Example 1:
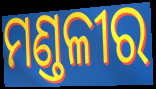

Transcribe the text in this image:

ମଣ୍ଡଳୀର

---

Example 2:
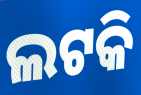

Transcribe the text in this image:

ଲଟକି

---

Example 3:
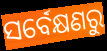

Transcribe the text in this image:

ସର୍ବେକ୍ଷଣରୁ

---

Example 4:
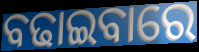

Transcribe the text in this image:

ବଢାଇବାରେ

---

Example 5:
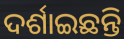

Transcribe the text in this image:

ଦର୍ଶାଇଛନ୍ତି